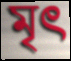
মৃৎ